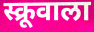
स्क्रूवाला